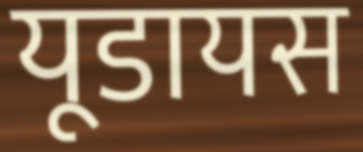
यूडायस